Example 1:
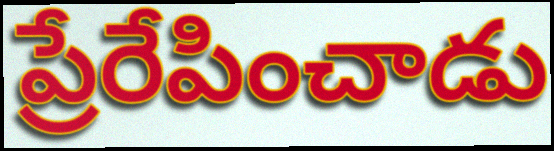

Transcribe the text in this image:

ప్రేరేపించాడు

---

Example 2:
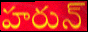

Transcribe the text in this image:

హరున్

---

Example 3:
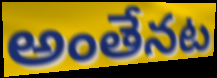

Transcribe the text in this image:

అంతేనట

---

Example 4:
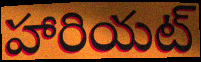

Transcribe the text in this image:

హారియట్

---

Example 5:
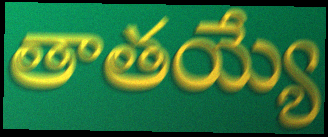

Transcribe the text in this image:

తాతయ్యే